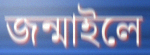
জন্মাইলে